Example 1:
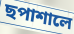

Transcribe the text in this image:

ছপাশালে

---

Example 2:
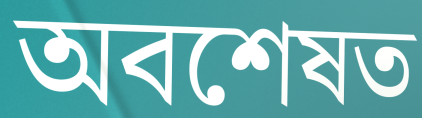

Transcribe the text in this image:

অবশেষত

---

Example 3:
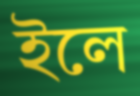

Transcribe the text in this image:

ইলে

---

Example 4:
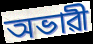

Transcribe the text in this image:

অভাৱী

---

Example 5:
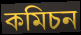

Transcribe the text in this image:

কমিচন